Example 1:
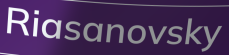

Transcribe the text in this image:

Riasanovsky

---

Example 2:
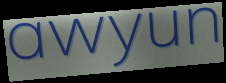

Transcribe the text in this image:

awyun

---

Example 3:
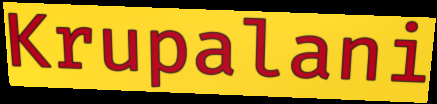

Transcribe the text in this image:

Krupalani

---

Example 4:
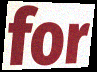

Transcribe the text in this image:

for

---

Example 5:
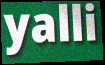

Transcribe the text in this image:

yalli